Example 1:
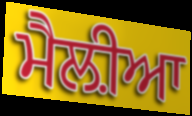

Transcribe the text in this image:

ਮੈਲ਼ੀਆ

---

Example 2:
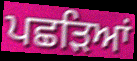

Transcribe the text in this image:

ਪਛੜਿਆਂ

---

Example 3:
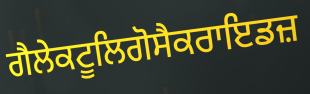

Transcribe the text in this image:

ਗੈਲੇਕਟੂਲਿਗੋਸੈਕਰਾਇਡਜ਼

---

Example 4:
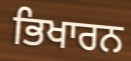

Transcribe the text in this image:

ਭਿਖਾਰਨ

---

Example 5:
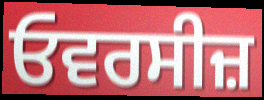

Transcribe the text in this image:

ਓਵਰਸੀਜ਼